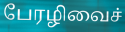
பேரழிவைச்